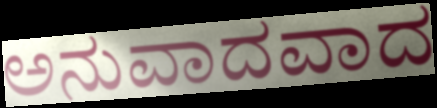
ಅನುವಾದವಾದ